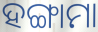
ହଙ୍ଗାମା